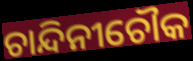
ଚାନ୍ଦିନୀଚୌକ